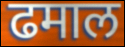
ढमाल